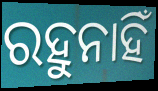
ରହୁନାହିଁ